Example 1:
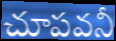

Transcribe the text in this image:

చూపవనీ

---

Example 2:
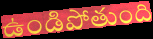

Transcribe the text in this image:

ఉండిపోతుంది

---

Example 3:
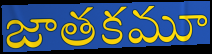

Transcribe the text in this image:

జాతకమూ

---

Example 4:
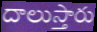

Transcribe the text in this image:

దాలుస్తారు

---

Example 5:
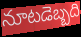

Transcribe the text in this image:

నూటడెబ్బది